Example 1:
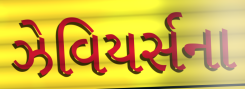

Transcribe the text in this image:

ઝેવિયર્સના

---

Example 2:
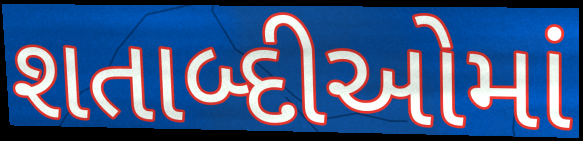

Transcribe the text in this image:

શતાબ્દીઓમાં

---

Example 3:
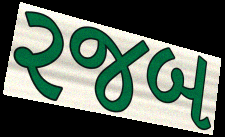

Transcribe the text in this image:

રજબ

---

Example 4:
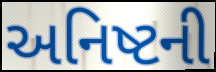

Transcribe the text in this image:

અનિષ્ટની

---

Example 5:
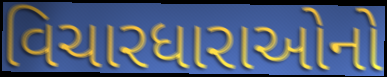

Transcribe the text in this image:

વિચારધારાઓનો